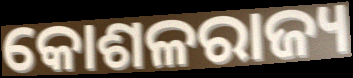
କୋଶଳରାଜ୍ୟ